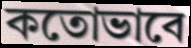
কতোভাবে